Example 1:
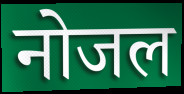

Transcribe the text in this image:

नोजल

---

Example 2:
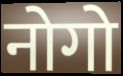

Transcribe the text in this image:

नोगो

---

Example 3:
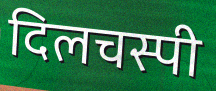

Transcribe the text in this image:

दिलचस्‍पी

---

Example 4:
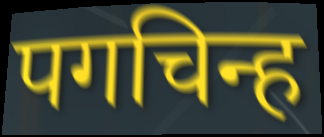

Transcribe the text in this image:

पगचिन्ह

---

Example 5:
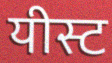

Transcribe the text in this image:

यीस्ट